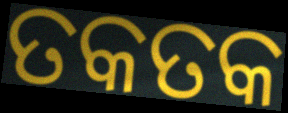
ତକତକ